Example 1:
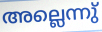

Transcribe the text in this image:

അല്ലെന്നു്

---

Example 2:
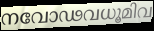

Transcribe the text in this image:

നവോഢവധൂമിവ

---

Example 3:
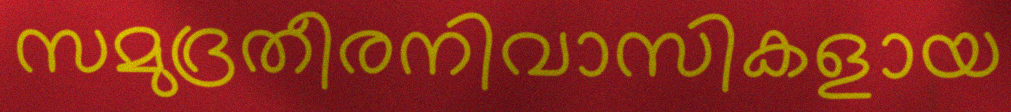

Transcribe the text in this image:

സമുദ്രതീരനിവാസികളായ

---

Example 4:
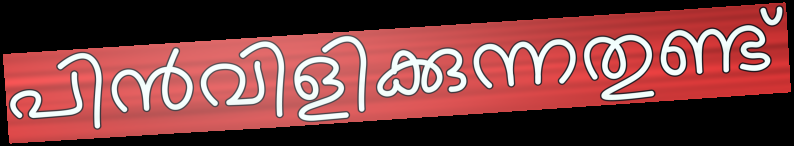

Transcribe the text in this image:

പിൻവിളിക്കുന്നതുണ്ട്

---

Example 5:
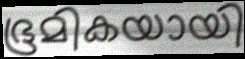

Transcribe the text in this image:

ഭൂമികയായി